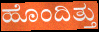
ಹೊಂದಿತ್ತು